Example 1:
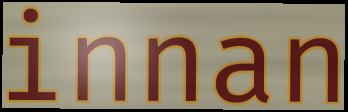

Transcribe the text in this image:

innan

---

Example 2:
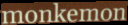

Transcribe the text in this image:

monkemon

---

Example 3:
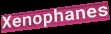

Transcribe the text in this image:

Xenophanes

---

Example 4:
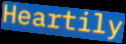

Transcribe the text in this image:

Heartily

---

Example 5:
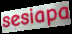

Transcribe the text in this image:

sesiapa